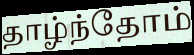
தாழ்ந்தோம்